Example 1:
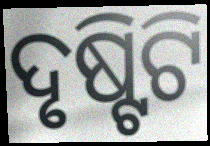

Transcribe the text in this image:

ଦୃଷ୍ଟିଟି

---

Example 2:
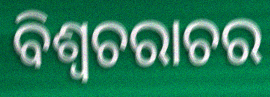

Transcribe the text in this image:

ବିଶ୍ଵଚରାଚର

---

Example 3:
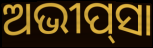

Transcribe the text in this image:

ଅଭୀପ୍‌ସା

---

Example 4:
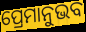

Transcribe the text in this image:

ପ୍ରେମାନୁଭବ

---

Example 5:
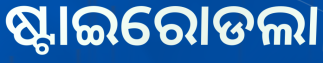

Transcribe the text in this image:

ଷ୍ଟାଇରୋଡଲା